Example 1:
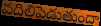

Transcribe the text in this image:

వదిలిపెడుతుందా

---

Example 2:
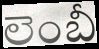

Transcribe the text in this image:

లెంబీ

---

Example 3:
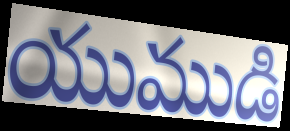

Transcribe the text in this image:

యుముడి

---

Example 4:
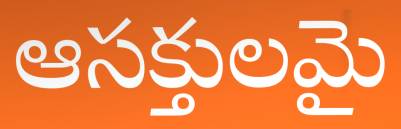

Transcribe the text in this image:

ఆసక్తులమై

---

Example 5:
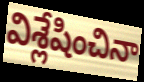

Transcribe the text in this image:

విశ్లేషించినా